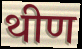
थीण